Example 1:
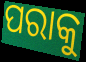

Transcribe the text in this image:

ପରାକୁ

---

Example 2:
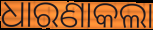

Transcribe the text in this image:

ଧାରଣାକଲା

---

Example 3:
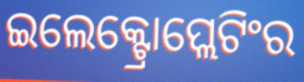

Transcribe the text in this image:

ଇଲେକ୍ଟ୍ରୋପ୍ଲେଟିଂର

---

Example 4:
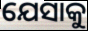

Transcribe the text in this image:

ଯେସାକୁ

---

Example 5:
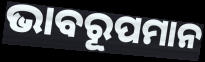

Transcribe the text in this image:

ଭାବରୂପମାନ